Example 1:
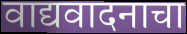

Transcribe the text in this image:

वाद्यवादनाचा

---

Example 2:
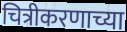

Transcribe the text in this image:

चित्रीकरणाच्या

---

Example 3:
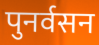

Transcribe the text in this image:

पुनर्वसन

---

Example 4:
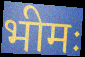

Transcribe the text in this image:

भीमः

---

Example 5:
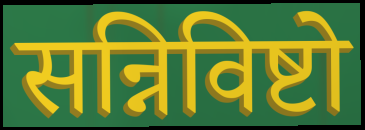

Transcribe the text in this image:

सन्निविष्टो